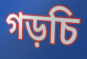
গড়চি